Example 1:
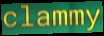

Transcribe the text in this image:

clammy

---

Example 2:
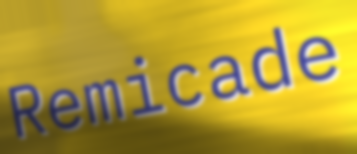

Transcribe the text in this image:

Remicade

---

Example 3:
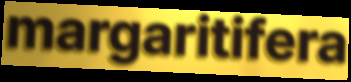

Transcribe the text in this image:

margaritifera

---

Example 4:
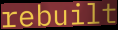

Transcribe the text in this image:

rebuilt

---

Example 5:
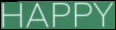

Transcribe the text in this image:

HAPPY